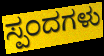
ಸ್ಪಂದಗಳು